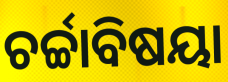
ଚର୍ଚ୍ଚାବିଷୟା